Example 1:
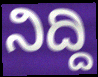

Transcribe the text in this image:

ನಿದ್ದಿ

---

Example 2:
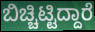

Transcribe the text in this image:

ಬಿಚ್ಚಿಟ್ಟಿದ್ದಾರೆ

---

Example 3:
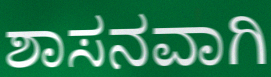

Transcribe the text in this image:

ಶಾಸನವಾಗಿ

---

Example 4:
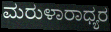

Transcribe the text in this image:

ಮರುಳಾರಾಧ್ಯರ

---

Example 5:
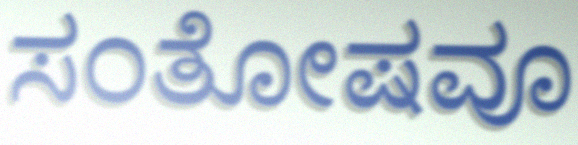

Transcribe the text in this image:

ಸಂತೋಷವೂ